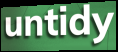
untidy